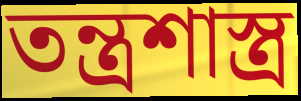
তন্ত্রশাস্ত্র